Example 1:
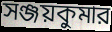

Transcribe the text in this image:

সঞ্জয়কুমার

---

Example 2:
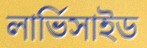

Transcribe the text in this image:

লার্ভিসাইড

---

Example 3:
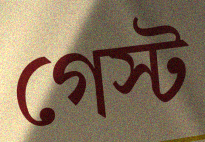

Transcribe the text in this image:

গেস্ট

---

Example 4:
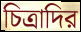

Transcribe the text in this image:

চিত্রাদির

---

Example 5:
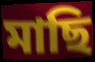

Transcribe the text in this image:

মাছি